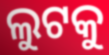
ଲୁଟକୁ